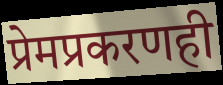
प्रेमप्रकरणही